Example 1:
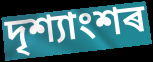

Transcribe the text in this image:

দৃশ্যাংশৰ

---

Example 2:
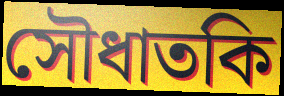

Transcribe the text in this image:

সৌধাতকি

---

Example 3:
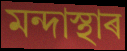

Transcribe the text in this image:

মন্দাস্থাৰ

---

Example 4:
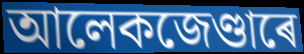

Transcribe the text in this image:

আলেকজেণ্ডাৰে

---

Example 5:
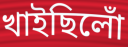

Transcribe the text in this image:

খাইছিলোঁ